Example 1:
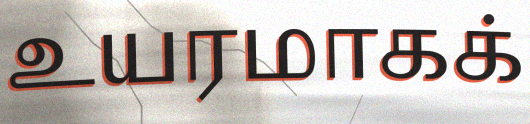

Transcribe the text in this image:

உயரமாகக்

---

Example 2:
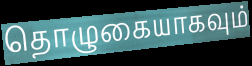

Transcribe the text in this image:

தொழுகையாகவும்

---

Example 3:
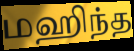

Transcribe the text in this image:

மஹிந்த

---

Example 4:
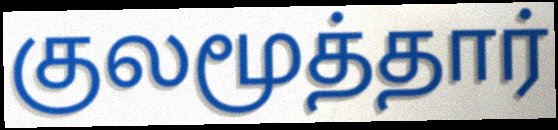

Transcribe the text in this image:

குலமூத்தார்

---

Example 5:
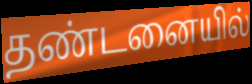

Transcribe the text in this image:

தண்டனையில்